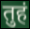
तुहं